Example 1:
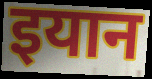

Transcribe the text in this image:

इयान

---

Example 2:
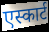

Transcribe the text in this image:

एस्कार्ट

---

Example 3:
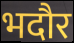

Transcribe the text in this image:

भदौर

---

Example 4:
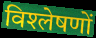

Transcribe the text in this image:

विश्लेषणों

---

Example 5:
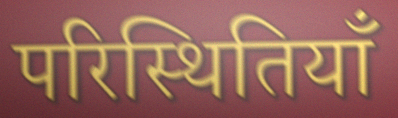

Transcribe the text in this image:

परिस्थितियाँ